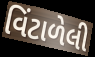
વિંટાળેલી